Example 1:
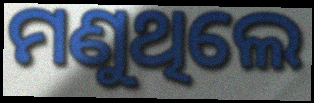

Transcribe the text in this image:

ମଣୁଥିଲେ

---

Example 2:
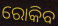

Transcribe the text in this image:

ରୋକିବ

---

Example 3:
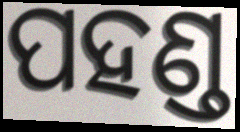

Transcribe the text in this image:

ପହଣ୍ଡ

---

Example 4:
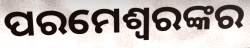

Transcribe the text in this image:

ପରମେଶ୍ୱରଙ୍କର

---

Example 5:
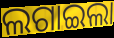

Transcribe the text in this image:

ଲଗାଇଲା